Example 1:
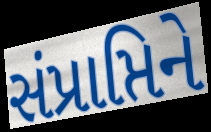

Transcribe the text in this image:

સંપ્રાપ્તિને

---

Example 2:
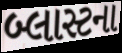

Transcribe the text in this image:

બ્લાસ્ટના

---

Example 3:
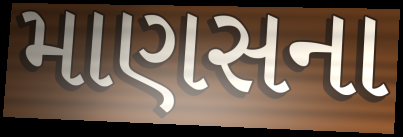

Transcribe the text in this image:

માણસના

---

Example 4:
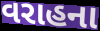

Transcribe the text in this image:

વરાહના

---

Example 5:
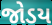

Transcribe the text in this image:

જોડય